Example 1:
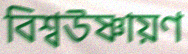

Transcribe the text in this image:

বিশ্বউষ্ণায়ণ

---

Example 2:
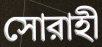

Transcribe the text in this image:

সোরাহী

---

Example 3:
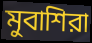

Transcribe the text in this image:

মুবাশিরা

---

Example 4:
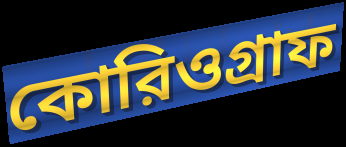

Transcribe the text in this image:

কোরিওগ্রাফ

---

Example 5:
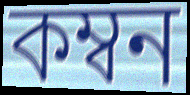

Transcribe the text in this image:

কম্বন